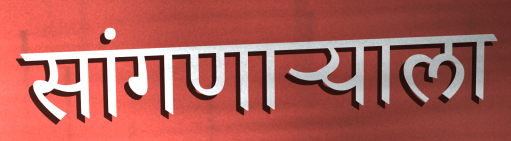
सांगणार्‍याला